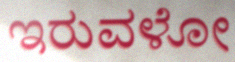
ಇರುವಳೋ